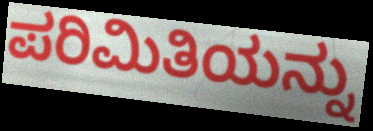
ಪರಿಮಿತಿಯನ್ನು